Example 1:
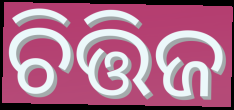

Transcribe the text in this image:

ଚିତ୍ତିଜ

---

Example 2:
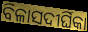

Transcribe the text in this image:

ବିଳାସଦୀର୍ଘିକା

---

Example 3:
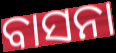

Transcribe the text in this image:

ବାସନା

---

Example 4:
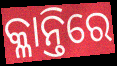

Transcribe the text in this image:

କ୍ଳାନ୍ତିରେ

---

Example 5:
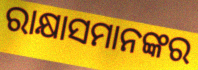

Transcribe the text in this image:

ରାକ୍ଷାସମାନଙ୍କର